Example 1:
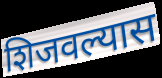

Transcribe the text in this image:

शिजवल्यास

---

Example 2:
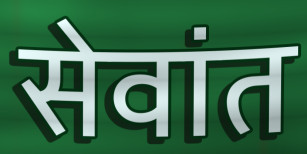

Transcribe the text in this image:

सेवांत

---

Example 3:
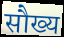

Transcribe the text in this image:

सौख्य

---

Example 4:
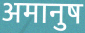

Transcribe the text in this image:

अमानुष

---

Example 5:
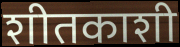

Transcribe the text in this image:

शीतकाशी